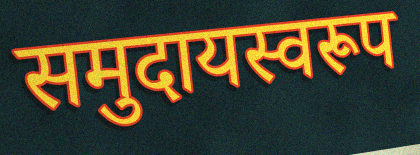
समुदायस्वरूप